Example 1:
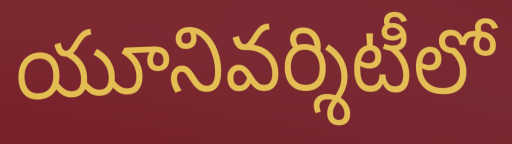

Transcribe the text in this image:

యూనివర్శిటీలో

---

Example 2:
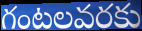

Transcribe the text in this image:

గంటలవరకు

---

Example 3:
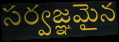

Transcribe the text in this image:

సర్వజ్ఞమైన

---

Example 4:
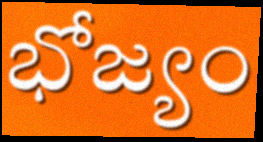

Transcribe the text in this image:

భోజ్యం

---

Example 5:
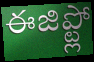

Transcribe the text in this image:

ఈజిప్ట్లో